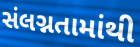
સંલગ્નતામાંથી